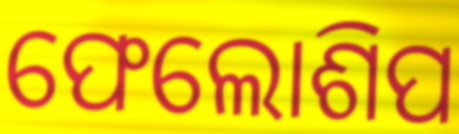
ଫେଲୋଶିପ